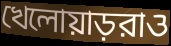
খেলোয়াড়রাও